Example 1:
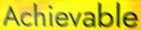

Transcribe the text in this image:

Achievable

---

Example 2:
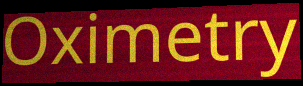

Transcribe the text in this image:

Oximetry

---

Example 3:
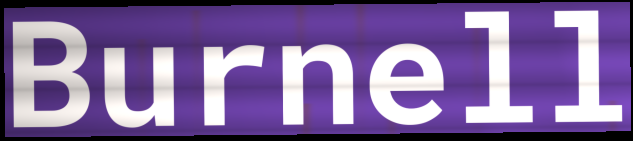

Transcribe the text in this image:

Burnell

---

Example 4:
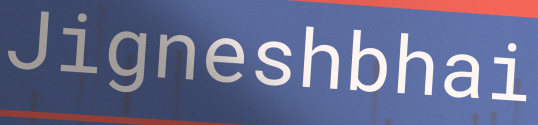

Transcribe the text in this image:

Jigneshbhai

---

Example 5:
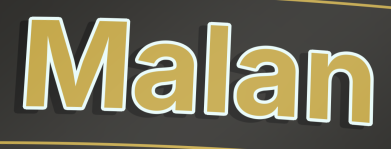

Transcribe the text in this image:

Malan